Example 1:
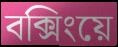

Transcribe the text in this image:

বক্সিংয়ে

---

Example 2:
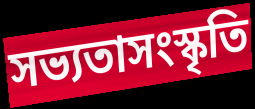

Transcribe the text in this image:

সভ্যতাসংস্কৃতি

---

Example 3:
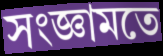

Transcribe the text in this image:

সংজ্ঞামতে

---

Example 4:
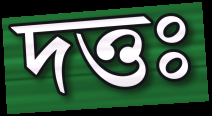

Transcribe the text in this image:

দত্তঃ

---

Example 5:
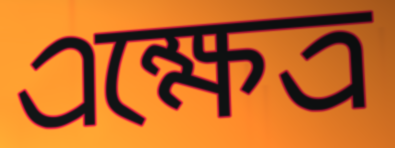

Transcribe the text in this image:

এক্ষেত্র